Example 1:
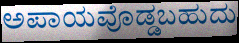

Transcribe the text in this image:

ಅಪಾಯವೊಡ್ಡಬಹುದು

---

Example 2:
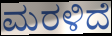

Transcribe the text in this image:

ಮರಳಿದೆ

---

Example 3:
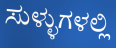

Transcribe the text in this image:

ಸುಳ್ಳುಗಳಲ್ಲಿ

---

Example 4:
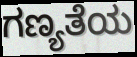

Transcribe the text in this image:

ಗಣ್ಯತೆಯ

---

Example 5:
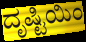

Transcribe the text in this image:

ದೃಷ್ಟಿಯಿಂ